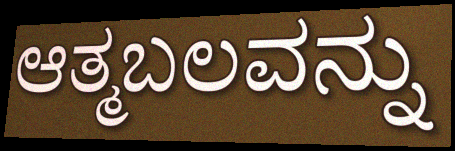
ಆತ್ಮಬಲವನ್ನು